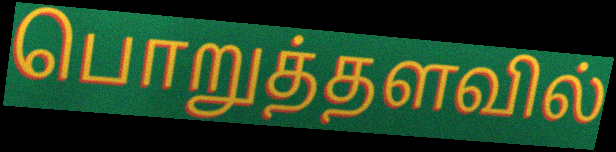
பொறுத்தளவில்